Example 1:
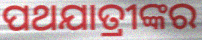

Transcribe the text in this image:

ପଥଯାତ୍ରୀଙ୍କର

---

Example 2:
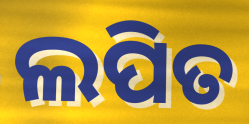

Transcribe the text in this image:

ଲପିତ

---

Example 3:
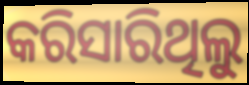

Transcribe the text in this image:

କରିସାରିଥିଲୁ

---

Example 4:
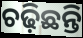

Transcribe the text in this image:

ଚଢ଼ିଛନ୍ତି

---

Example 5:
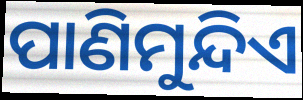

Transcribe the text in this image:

ପାଣିମୁନ୍ଦିଏ